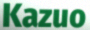
Kazuo